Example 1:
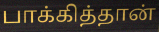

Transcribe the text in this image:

பாக்கித்தான்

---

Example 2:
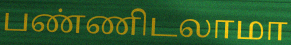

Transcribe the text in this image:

பண்ணிடலாமா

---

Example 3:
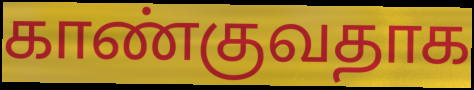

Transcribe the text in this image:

காண்குவதாக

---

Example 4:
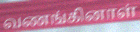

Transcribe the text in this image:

வணங்கினாள்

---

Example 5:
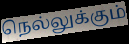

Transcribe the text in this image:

நெல்லுக்கும்